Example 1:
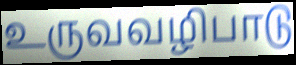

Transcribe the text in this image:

உருவவழிபாடு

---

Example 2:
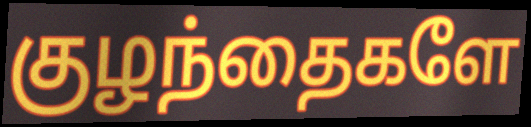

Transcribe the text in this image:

குழந்தைகளே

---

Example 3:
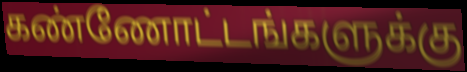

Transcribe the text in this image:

கண்ணோட்டங்களுக்கு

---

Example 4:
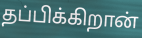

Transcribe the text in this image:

தப்பிக்கிறான்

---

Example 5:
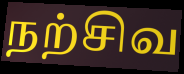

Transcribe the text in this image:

நற்சிவ